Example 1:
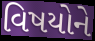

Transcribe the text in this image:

વિષયોને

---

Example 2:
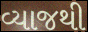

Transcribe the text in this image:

વ્યાજથી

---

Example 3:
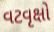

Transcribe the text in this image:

વટવૃક્ષો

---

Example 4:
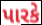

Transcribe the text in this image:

પારકે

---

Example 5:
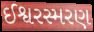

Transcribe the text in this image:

ઈશ્વરસ્મરણ